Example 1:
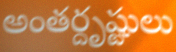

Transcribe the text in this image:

అంతర్దృష్టులు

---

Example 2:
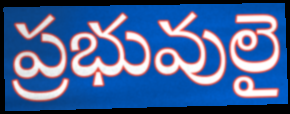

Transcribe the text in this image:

ప్రభువులై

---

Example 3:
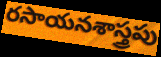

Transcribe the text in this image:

రసాయనశాస్త్రపు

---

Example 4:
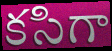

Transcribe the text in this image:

కసిగా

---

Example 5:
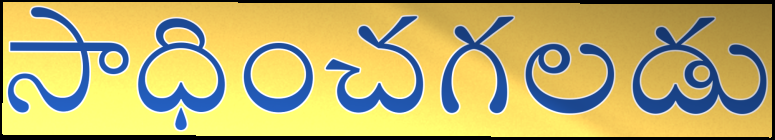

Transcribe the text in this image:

సాధించగలడు